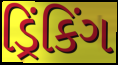
ડ્રિંકિંગ